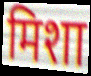
मिशा